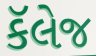
કૅલેજ